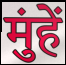
मुंहें